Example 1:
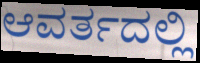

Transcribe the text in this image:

ಆವರ್ತದಲ್ಲಿ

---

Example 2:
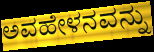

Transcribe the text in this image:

ಅವಹೇಳನವನ್ನು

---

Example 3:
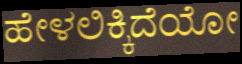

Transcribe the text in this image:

ಹೇಳಲಿಕ್ಕಿದೆಯೋ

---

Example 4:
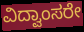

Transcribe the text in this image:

ವಿದ್ವಾಂಸರೇ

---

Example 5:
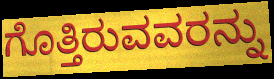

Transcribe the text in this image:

ಗೊತ್ತಿರುವವರನ್ನು